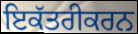
ਇਕੱਤਰੀਕਰਨ